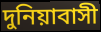
দুনিয়াবাসী